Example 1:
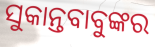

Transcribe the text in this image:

ସୁକାନ୍ତବାବୁଙ୍କର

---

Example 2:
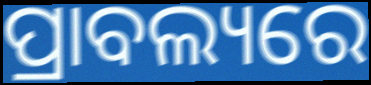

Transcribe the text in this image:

ପ୍ରାବଲ୍ୟରେ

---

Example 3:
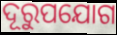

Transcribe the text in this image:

ଦୂରୁପଯୋଗ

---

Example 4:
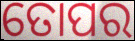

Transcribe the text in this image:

ତୋପର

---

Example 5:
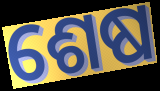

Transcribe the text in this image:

ଶେଷ